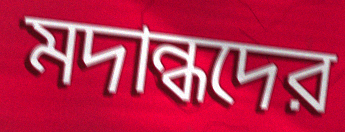
মদান্ধদের